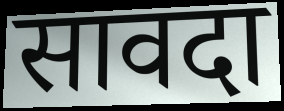
सावदा